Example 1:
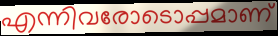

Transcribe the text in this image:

എന്നിവരോടൊപ്പമാണ്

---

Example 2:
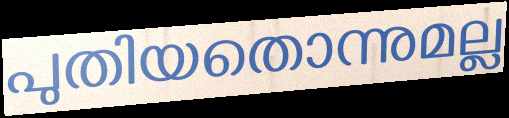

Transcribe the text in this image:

പുതിയതൊന്നുമല്ല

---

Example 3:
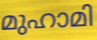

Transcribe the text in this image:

മുഹാമി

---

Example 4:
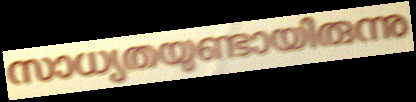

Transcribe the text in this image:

സാധ്യതയുണ്ടായിരുന്നു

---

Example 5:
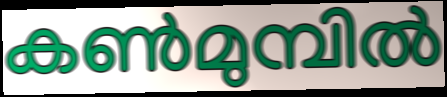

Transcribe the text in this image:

കൺമുമ്പിൽ